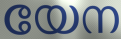
യേന